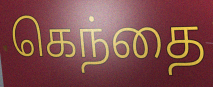
கெந்தை